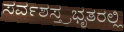
ಸರ್ವಶಸ್ತ್ರಭೃತರಲ್ಲಿ